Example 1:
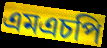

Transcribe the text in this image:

এমএচপি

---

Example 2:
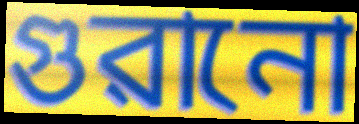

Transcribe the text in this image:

গুৱানো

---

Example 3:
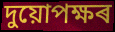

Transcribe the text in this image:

দুয়োপক্ষৰ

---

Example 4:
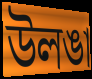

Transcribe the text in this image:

উলঙা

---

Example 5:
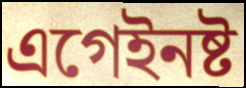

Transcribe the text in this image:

এগেইনষ্ট